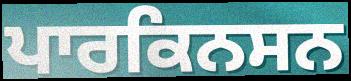
ਪਾਰਕਿਨਸਨ